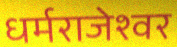
धर्मराजेश्वर